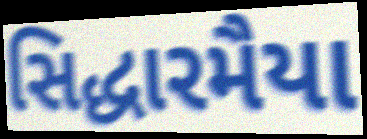
સિદ્ધારમૈયા